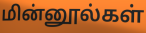
மின்னூல்கள்